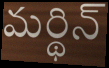
మర్థిన్